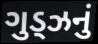
ગુડ્ઝનું